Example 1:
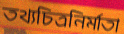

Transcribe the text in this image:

তথ্যচিত্রনির্মাতা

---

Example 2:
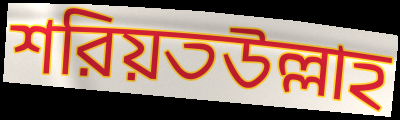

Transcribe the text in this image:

শরিয়তউল্লাহ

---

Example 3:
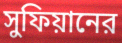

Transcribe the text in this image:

সুফিয়ানের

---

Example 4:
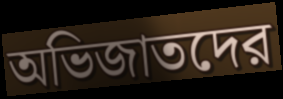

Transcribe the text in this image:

অভিজাতদের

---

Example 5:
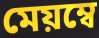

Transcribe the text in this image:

মেয়ম্বে